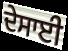
ਦੇਸਾਈ